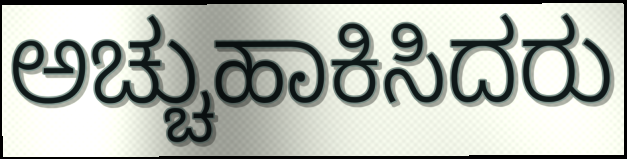
ಅಚ್ಚುಹಾಕಿಸಿದರು